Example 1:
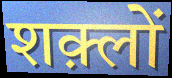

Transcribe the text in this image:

शक़्लों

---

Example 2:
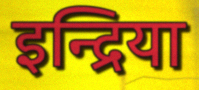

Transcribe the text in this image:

इन्द्रिया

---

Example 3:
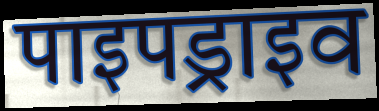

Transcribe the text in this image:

पाइपड्राइव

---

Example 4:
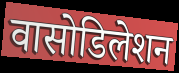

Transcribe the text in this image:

वासोडिलेशन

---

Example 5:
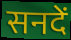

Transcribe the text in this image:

सनदें